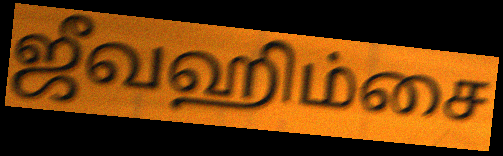
ஜீவஹிம்சை